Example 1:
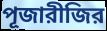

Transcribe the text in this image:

পূজারীজির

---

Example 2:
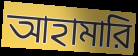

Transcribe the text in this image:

আহামারি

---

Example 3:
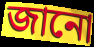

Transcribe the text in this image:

জানো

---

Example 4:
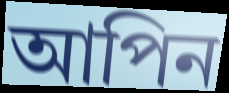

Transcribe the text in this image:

আপিন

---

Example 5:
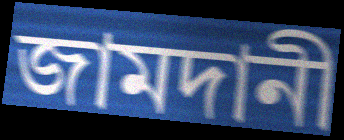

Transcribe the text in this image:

জামদানী